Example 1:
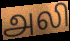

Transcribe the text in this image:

அலி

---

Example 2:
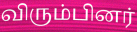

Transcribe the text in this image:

விரும்பினர்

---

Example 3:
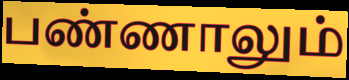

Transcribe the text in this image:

பண்ணாலும்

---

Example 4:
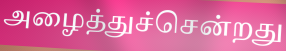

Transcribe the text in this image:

அழைத்துச்சென்றது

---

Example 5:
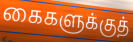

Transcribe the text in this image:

கைகளுக்குத்